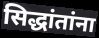
सिद्धांतांना